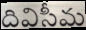
దివిసీమ